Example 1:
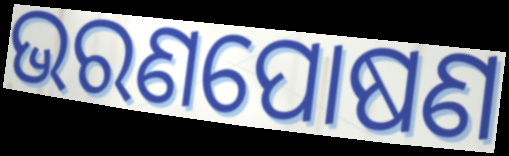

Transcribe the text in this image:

ଭରଣପୋଷଣ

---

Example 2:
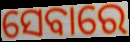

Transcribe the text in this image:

ସେବାରେ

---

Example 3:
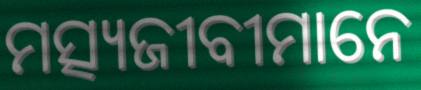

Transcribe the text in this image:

ମତ୍ସ୍ୟଜୀବୀମାନେ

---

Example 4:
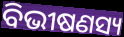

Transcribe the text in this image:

ବିଭୀଷଣସ୍ୟ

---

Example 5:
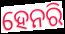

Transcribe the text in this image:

ହେନରି